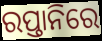
ରପ୍ତାନିରେ